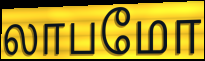
லாபமோ